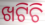
ଖଟିଚି